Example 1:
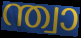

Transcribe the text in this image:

ന്ത്വാ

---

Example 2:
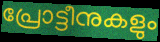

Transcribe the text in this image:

പ്രോട്ടീനുകളും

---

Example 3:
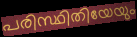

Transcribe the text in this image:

പരിസ്ഥിതിയേയും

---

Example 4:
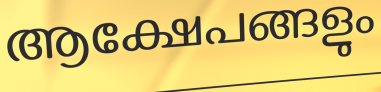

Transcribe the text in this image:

ആക്ഷേപങ്ങളും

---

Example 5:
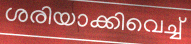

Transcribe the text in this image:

ശരിയാക്കിവെച്ച്